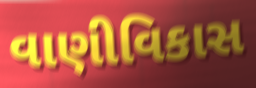
વાણીવિકાસ